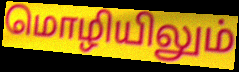
மொழியிலும்